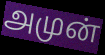
அமுன்